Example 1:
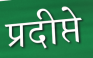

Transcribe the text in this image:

प्रदीप्ते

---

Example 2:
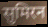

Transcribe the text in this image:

सुमिरन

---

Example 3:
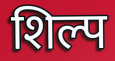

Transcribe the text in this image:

शिल्‍प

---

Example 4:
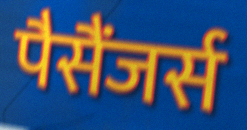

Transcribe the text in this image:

पैसैंजर्स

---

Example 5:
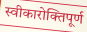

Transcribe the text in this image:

स्वीकारोक्तिपूर्ण